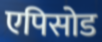
एपिसोड